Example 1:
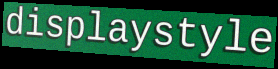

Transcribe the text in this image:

displaystyle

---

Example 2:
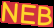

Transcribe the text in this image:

NEB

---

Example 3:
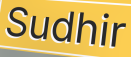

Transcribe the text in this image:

Sudhir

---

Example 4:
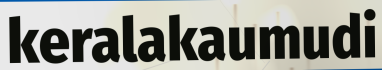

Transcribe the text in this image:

keralakaumudi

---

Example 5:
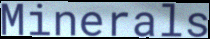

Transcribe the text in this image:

Minerals